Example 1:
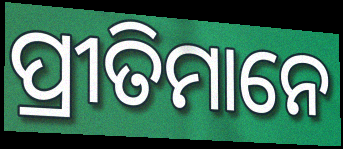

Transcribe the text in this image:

ପ୍ରୀତିମାନେ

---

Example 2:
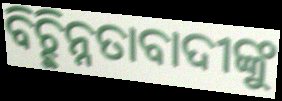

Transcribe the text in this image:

ବିଚ୍ଛିନ୍ନତାବାଦୀଙ୍କୁ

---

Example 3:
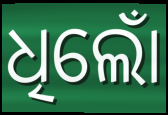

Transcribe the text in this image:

ଧିଲୋଁ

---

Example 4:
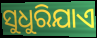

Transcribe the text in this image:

ସୁଧୁରିଯାଏ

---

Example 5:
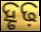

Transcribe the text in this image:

ହୃଢ଼